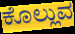
ಕೊಲ್ಲುವ